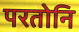
परतोनि